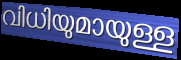
വിധിയുമായുള്ള